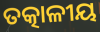
ତତ୍କାଳୀୟ